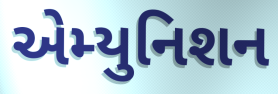
એમ્યુનિશન